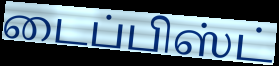
டைப்பிஸ்ட்